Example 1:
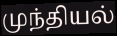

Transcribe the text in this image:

முந்தியல்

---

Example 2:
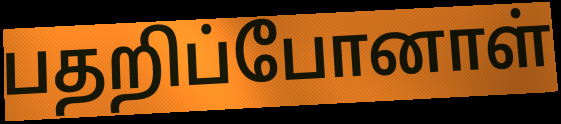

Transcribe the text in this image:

பதறிப்போனாள்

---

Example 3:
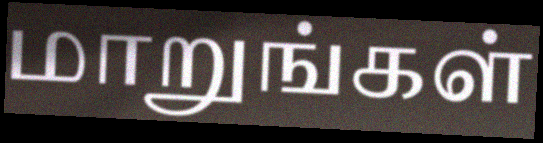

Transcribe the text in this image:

மாறுங்கள்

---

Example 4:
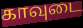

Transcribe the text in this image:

காவுடை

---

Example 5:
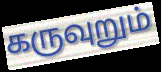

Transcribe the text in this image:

கருவுறும்